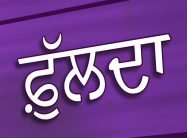
ਫ਼ੁੱਲਦਾ